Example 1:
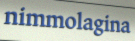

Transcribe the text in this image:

nimmolagina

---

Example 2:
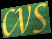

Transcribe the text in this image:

cvs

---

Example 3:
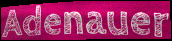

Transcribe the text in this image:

Adenauer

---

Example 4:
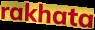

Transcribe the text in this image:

rakhata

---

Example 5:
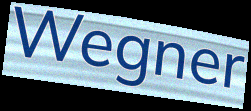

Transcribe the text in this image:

Wegner